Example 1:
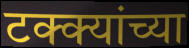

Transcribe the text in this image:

टक्क्यांच्या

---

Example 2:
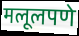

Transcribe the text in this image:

मलूलपणे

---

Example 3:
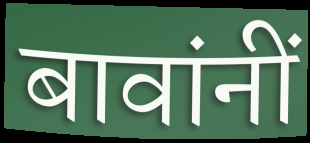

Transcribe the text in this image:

बावांनीं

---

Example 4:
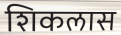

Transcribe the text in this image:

शिकलास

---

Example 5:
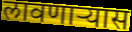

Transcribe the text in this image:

लावणाऱ्यास